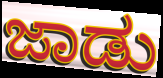
ಜಾಡು